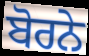
ਬੋਰਨੇ